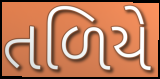
તળિયે